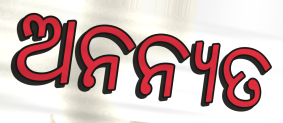
ଅନନ୍ୟତ